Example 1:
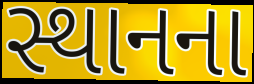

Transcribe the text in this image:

સ્થાનના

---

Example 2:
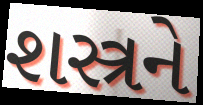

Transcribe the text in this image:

શસ્ત્રને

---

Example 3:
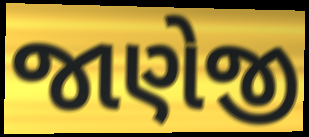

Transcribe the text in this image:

જાણેજી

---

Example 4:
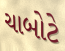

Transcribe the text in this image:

ચાબોટે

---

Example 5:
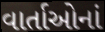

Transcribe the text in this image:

વાર્તાઓનાં